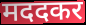
मददकर